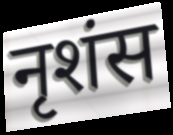
नृशंस